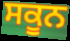
ਸਕੂਨ